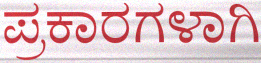
ಪ್ರಕಾರಗಳಾಗಿ